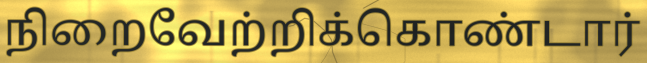
நிறைவேற்றிக்கொண்டார்